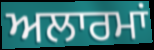
ਅਲਾਰਮਾਂ